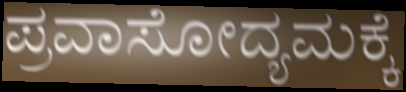
ಪ್ರವಾಸೋದ್ಯಮಕ್ಕೆ